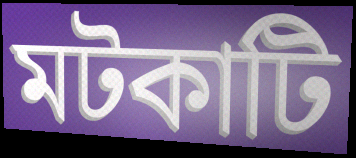
মটকাটি